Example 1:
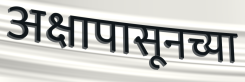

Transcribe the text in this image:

अक्षापासूनच्या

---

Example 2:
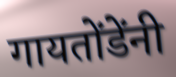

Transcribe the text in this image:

गायतोंडेंनी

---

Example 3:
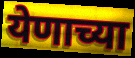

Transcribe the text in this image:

येणाच्या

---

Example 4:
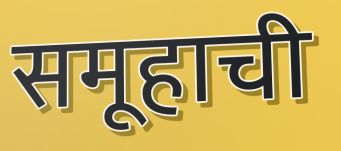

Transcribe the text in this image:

समूहाची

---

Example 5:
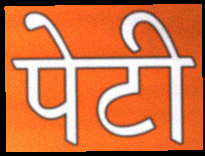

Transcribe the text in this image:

पेटी